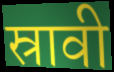
स्रावी